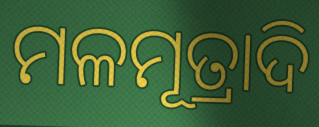
ମଳମୂତ୍ରାଦି